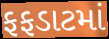
ફફડાટમાં